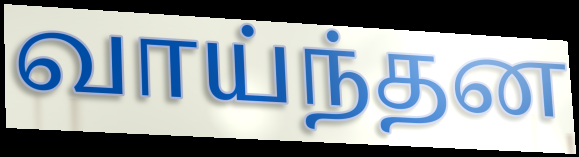
வாய்ந்தன